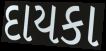
દાયકા